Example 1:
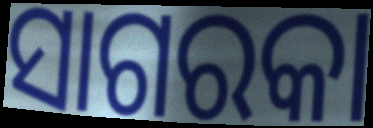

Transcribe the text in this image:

ସାଗରକା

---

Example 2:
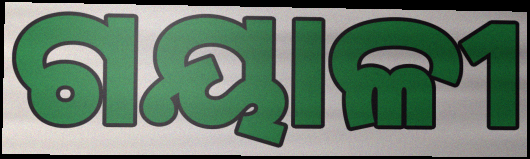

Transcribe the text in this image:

ଗୟାଳୀ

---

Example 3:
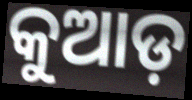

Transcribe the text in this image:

କୁଆଡ଼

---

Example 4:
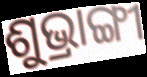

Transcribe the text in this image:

ଶୁଭ୍ରାଙ୍ଗୀ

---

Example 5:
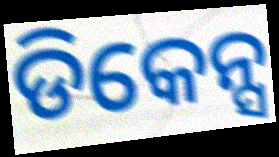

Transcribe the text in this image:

ଡିକେନ୍ସ